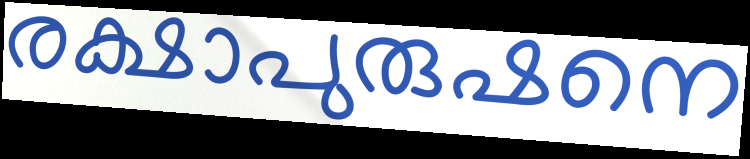
രക്ഷാപുരുഷനെ